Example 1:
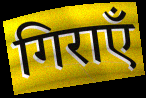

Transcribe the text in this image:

गिराएँ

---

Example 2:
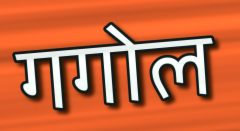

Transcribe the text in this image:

गगोल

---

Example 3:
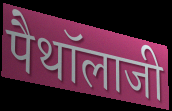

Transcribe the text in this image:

पैथॉलाजी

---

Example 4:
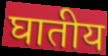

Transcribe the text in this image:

घातीय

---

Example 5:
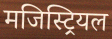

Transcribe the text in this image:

मजिस्ट्रियल